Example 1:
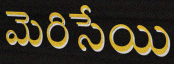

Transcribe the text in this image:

మెరిసేయి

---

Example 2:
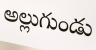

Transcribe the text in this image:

అల్లుగుండు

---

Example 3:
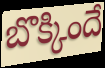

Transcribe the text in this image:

బొక్కిందే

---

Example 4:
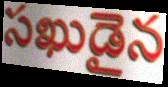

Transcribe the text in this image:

సఖుడైన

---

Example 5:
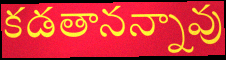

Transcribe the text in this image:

కడతానన్నావు